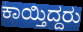
ಕಾಯ್ತಿದ್ದರು